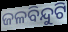
ଜଳବିନ୍ଦୁଟି